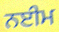
ਨਈਮ